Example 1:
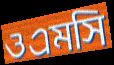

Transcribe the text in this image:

ওএমসি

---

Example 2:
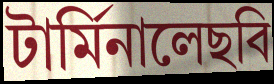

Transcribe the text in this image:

টার্মিনালেছবি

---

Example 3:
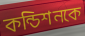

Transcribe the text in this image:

কন্ডিশনকে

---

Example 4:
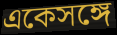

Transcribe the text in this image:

একেসঙ্গে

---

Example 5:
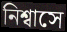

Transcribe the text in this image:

নিশ্বাসে